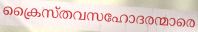
ക്രൈസ്തവസഹോദരന്മാരെ